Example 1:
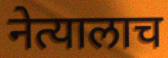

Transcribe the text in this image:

नेत्यालाच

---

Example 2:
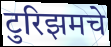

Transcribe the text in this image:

टुरिझमचे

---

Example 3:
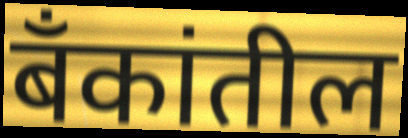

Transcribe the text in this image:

बॅंकांतील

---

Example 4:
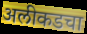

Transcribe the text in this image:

अलीकडचा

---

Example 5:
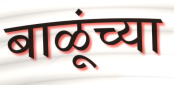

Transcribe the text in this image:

बाळूंच्या